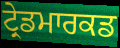
ਟ੍ਰੇਡਮਾਰਕਡ